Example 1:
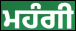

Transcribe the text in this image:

ਮਹੰਗੀ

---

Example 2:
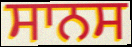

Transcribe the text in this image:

ਸਾਨਸ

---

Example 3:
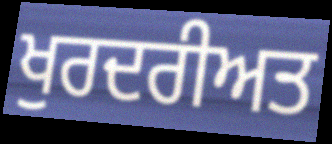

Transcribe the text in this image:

ਖੁਰਦਰੀਅਤ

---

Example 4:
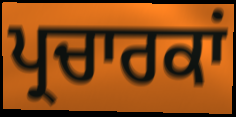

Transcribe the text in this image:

ਪ੍ਰਚਾਰਕਾਂ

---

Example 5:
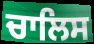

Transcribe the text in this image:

ਚਾਲਿਸ